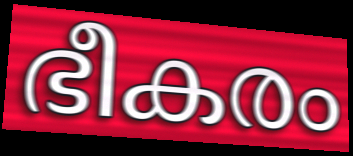
ഭീകരം